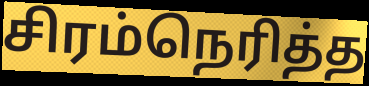
சிரம்நெரித்த